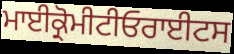
ਮਾਈਕ੍ਰੋਮੀਟੀਓਰਾਈਟਸ